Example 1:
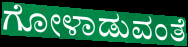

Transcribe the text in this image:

ಗೋಳಾಡುವಂತೆ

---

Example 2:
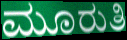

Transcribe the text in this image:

ಮೂರುತಿ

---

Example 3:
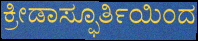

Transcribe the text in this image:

ಕ್ರೀಡಾಸ್ಫೂರ್ತಿಯಿಂದ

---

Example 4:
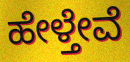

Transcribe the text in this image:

ಹೇಳ್ತೇವೆ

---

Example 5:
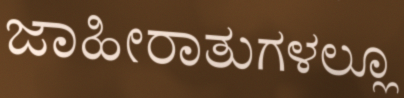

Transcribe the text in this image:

ಜಾಹೀರಾತುಗಳಲ್ಲೂ